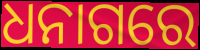
ଧନାଗରେ